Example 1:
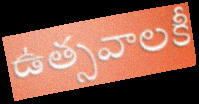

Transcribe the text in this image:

ఉత్సవాలకీ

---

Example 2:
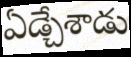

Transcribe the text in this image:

ఏడ్చేశాడు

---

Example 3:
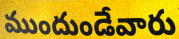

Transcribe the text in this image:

ముందుండేవారు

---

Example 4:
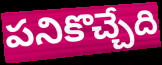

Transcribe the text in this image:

పనికొచ్చేది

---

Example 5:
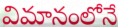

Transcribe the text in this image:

విమానంలోనే